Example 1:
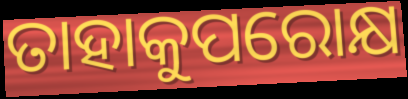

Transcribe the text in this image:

ତାହାକୁପରୋକ୍ଷ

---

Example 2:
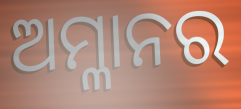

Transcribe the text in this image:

ଅମ୍ଳାନର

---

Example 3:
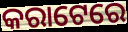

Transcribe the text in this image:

କରାଟେରେ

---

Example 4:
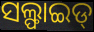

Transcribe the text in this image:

ସଲ୍ଫାଇଡ୍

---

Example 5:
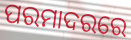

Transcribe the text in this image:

ପରମାଦରରେ